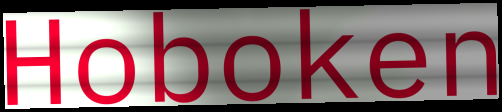
Hoboken